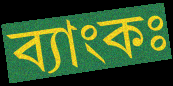
ব্যাংকঃ